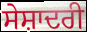
ਸੇਸ਼ਾਦਰੀ